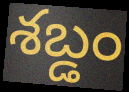
శబ్డం